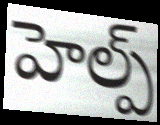
హెల్ప్